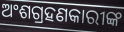
ଅଂଶଗ୍ରହଣକାରୀଙ୍କ